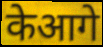
केआगे